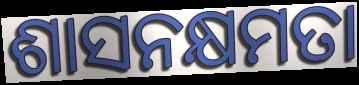
ଶାସନକ୍ଷମତା